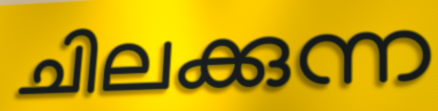
ചിലക്കുന്ന